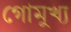
গোমুখ্য